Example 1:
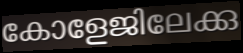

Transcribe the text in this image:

കോളേജിലേക്കു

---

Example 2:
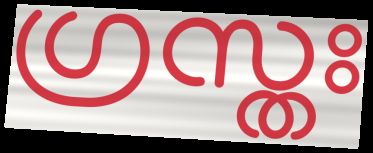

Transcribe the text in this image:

ഗ്രസ്തഃ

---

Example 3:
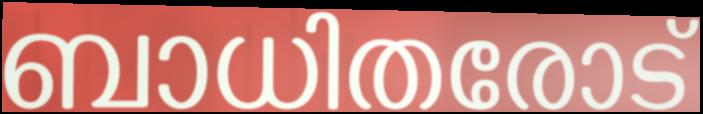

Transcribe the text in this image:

ബാധിതരോട്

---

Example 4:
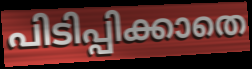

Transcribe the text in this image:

പിടിപ്പിക്കാതെ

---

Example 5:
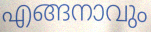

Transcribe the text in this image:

എങ്ങനാവും